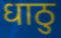
धाठु